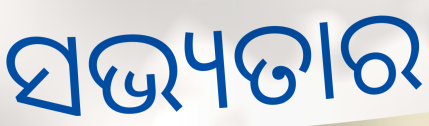
ସଭ୍ୟତାର